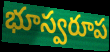
భూస్వరూప